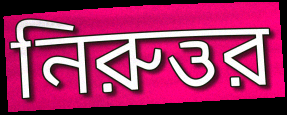
নিরুত্তর